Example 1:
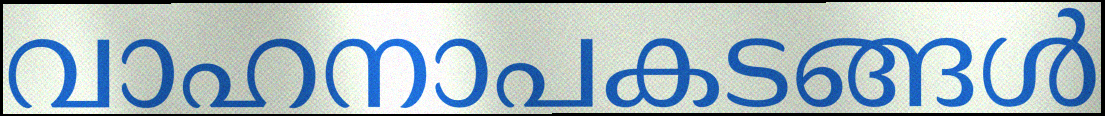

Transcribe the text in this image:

വാഹനാപകടങ്ങൾ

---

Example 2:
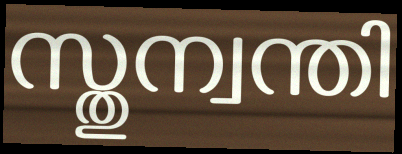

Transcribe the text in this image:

സ്തുന്വന്തി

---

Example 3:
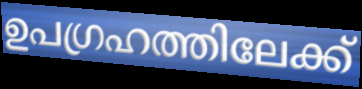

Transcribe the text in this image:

ഉപഗ്രഹത്തിലേക്ക്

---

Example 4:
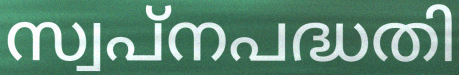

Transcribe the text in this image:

സ്വപ്നപദ്ധതി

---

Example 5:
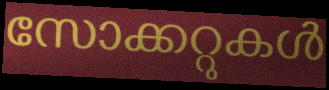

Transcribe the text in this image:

സോക്കറ്റുകൾ